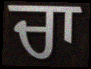
ਚਾ